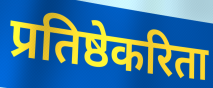
प्रतिष्ठेकरिता